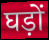
घड़ों